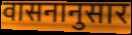
वासनानुसार